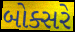
બોક્સરે